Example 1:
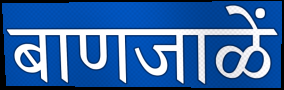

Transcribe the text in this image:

बाणजाळें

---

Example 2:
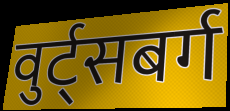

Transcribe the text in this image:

वुर्ट्सबर्ग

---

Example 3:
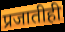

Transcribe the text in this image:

प्रजातीही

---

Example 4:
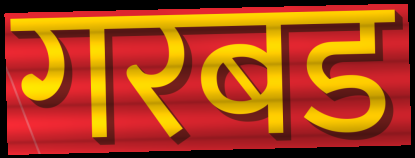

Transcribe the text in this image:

गरबड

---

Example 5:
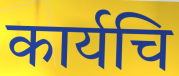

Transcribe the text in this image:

कार्यचि